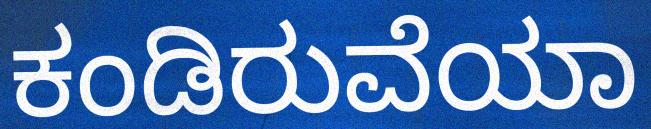
ಕಂಡಿರುವೆಯಾ